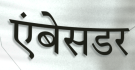
एंबेसडर